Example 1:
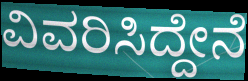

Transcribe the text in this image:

ವಿವರಿಸಿದ್ದೇನೆ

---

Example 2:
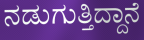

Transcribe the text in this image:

ನಡುಗುತ್ತಿದ್ದಾನೆ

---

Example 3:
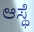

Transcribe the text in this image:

ಆಸ್ಥೆ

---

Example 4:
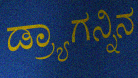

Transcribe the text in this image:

ಡ್ರ್ಯಾಗನ್ನಿನ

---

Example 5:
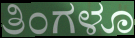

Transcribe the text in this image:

ತಿಂಗಳೂ